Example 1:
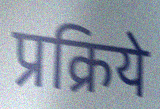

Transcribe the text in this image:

प्रक्रिये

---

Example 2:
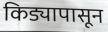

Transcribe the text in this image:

किड्यापासून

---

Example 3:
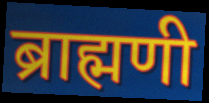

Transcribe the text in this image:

ब्राह्मणी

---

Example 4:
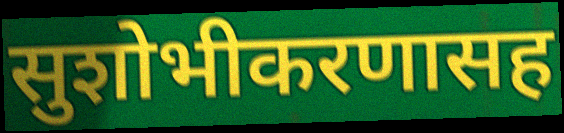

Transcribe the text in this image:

सुशोभीकरणासह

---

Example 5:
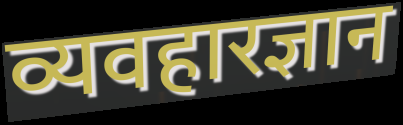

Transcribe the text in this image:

व्यवहारज्ञान